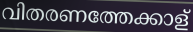
വിതരണത്തേക്കാള്